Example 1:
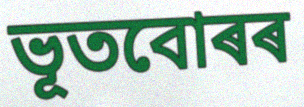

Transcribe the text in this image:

ভূতবোৰৰ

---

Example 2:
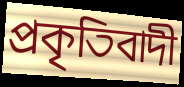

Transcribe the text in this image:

প্ৰকৃতিবাদী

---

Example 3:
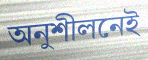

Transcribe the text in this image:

অনুশীলনেই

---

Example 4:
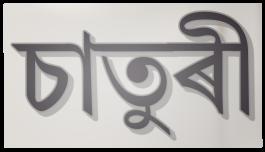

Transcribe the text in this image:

চাতুৰী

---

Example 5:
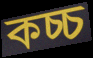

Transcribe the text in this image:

কচ্চ